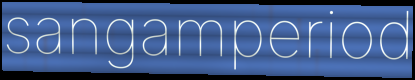
sangamperiod